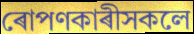
ৰোপণকাৰীসকলে